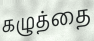
கழுத்தை